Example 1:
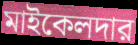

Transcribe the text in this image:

মাইকেলদার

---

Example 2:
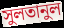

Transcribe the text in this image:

সুলতানুল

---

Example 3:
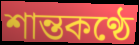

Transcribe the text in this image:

শান্তকণ্ঠে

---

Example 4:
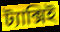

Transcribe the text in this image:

ট্যাক্সিই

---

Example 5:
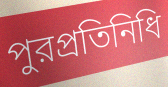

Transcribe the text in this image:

পুরপ্রতিনিধি